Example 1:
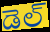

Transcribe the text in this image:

డెల్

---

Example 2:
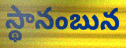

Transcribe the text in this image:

స్థానంబున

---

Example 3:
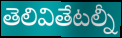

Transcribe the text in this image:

తెలివితేటల్నీ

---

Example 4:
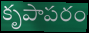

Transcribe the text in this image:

కృపాపరం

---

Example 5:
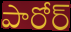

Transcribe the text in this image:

పారోర్